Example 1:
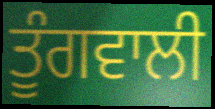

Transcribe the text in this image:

ਤੂੰਗਵਾਲੀ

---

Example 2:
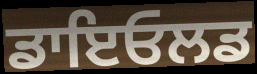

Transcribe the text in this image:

ਡਾਇਓਲਡ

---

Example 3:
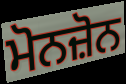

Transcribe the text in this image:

ਮੋਨਜ਼ੋਨ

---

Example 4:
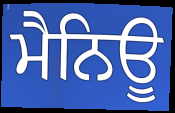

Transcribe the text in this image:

ਮੈਨਿਊ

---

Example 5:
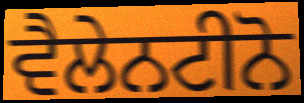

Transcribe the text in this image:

ਵੈਲੇਨਟੀਨੋ